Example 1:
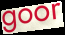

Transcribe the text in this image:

goor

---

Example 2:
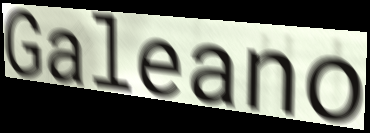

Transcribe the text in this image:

Galeano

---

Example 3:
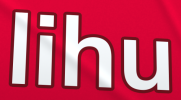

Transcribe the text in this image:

lihu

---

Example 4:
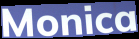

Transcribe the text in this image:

Monica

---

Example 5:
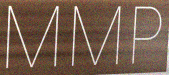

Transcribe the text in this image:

MMP